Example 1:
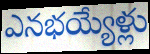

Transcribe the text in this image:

ఎనభయ్యేళ్లు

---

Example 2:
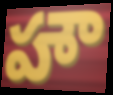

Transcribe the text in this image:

హౌ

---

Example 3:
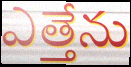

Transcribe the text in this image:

ఎత్తేను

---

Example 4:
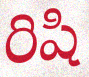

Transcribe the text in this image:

రిషి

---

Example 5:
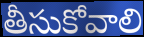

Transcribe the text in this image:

తీసుకోవాలి